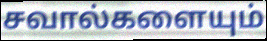
சவால்களையும்